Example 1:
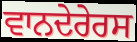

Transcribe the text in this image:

ਵਾਨਦੇਰੇਰਸ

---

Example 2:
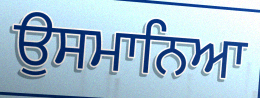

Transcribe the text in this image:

ਉਸਮਾਨਿਆ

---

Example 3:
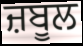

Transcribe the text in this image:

ਜ਼ਬੂਲ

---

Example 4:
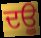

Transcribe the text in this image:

ਦਊ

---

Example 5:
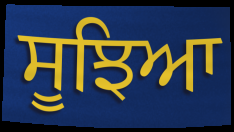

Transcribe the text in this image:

ਸੂਝਿਆ